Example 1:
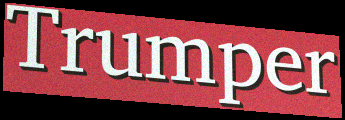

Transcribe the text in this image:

Trumper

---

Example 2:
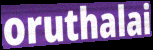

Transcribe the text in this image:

oruthalai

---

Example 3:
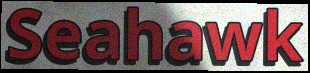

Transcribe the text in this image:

Seahawk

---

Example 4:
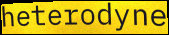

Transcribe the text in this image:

heterodyne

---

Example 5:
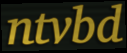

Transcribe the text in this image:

ntvbd